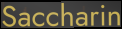
Saccharin